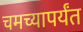
चमच्यापर्यंत